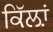
ਕਿੱਲ਼ਾਂ